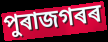
পুৰাজগৰৰ